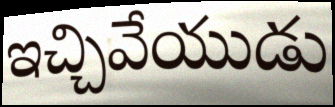
ఇచ్చివేయుడు